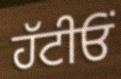
ਹੱਟੀਓਂ